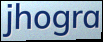
jhogra